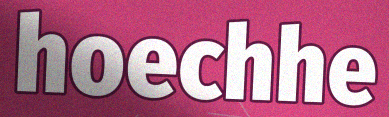
hoechhe